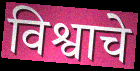
विश्वाचे